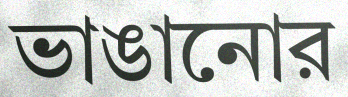
ভাঙানোর